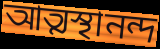
আত্মস্থানন্দ